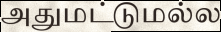
அதுமட்டுமல்ல